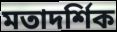
মতাদর্শিক